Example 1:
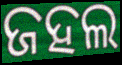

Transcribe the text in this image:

ଜହଲ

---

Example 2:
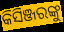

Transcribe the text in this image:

କିସିଞ୍ଜରଙ୍କୁ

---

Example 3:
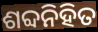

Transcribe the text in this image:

ଶବ୍ଦନିହିତ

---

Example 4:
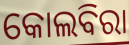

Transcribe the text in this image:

କୋଲବିରା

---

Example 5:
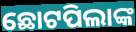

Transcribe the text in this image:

ଛୋଟପିଲାଙ୍କ